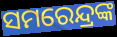
ସମରେନ୍ଦ୍ରଙ୍କ